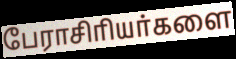
பேராசிரியர்களை